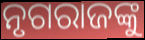
ନୃଗରାଜଙ୍କୁ